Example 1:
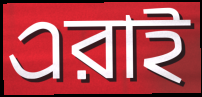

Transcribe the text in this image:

এরাই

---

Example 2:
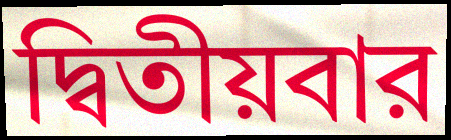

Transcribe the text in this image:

দ্বিতীয়বার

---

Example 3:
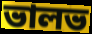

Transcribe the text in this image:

ভালভ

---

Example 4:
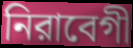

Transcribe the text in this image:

নিরাবেগী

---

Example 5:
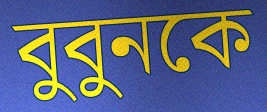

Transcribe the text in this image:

বুবুনকে